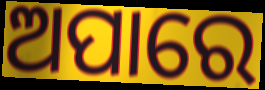
ଅପାରେ